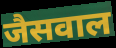
जैसवाल